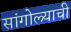
सांगोल्याची